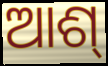
ଆଶ୍